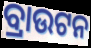
ବ୍ରାଉଟନ